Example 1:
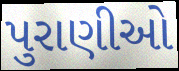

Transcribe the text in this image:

પુરાણીઓ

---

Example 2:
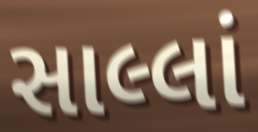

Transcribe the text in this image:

સાલ્લાં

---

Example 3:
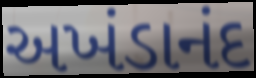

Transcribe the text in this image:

અખંડાનંદ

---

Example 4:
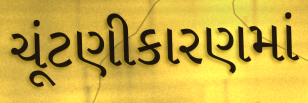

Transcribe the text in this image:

ચૂંટણીકારણમાં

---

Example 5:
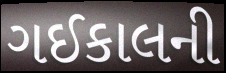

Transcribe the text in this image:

ગઈકાલની